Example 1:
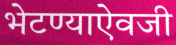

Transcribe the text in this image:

भेटण्याऐवजी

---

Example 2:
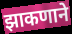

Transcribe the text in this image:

झाकणाने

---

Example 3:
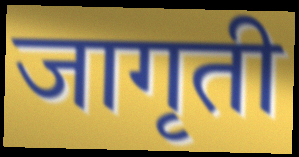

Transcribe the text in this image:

जागृती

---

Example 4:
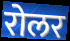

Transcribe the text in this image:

रोलर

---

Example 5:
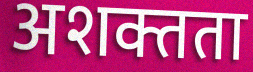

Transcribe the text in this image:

अशक्‍तता